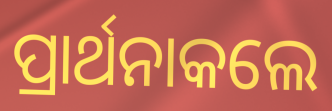
ପ୍ରାର୍ଥନାକଲେ